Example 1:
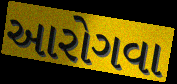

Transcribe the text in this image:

આરોગવા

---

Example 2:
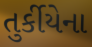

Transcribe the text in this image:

તુર્કીયેના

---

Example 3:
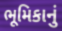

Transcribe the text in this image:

ભૂમિકાનું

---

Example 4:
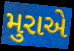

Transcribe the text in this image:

મુરાએ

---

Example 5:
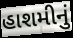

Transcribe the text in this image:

હાશમીનું